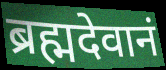
ब्रह्मदेवानं